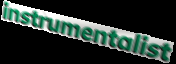
instrumentalist